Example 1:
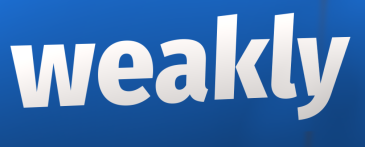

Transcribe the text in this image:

weakly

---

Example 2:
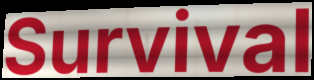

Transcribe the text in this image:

Survival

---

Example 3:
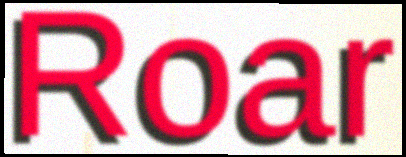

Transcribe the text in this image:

Roar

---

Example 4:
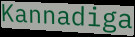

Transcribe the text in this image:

Kannadiga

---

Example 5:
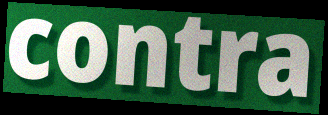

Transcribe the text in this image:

contra